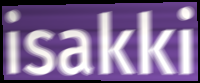
isakki